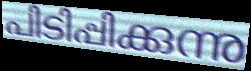
പിടിപ്പിക്കുന്നു